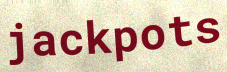
jackpots